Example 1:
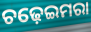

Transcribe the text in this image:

ଚଢ଼େଇମରା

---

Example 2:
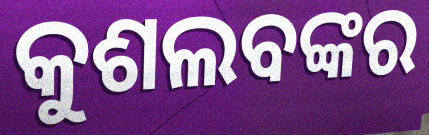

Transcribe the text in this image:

କୁଶଲବଙ୍କର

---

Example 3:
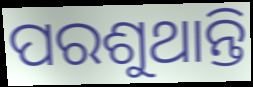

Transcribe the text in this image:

ପରଶୁଥାନ୍ତି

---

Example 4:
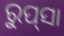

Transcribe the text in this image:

ରୁପ୍‍ସା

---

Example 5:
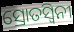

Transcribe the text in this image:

ସ୍ରୋତସ୍ୱିନୀ